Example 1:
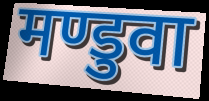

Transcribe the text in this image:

मण्डुवा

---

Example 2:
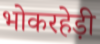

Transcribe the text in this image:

भोकरहेड़ी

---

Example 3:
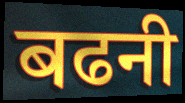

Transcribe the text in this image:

बढनी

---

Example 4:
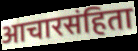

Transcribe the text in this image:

आचारसंहिता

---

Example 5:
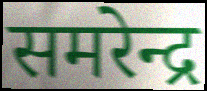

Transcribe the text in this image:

समरेन्द्र